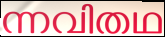
ന്നവിതഥ